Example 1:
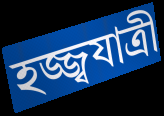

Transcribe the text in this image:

হজ্জ্বযাত্রী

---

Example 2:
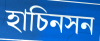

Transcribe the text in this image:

হাচিনসন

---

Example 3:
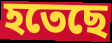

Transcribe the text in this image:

হতেছে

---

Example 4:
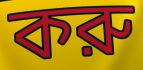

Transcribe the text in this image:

করু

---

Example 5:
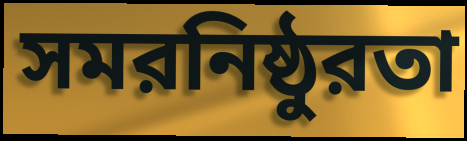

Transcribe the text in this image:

সমরনিষ্ঠুরতা